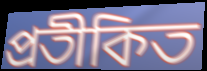
প্ৰতীকিত